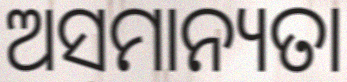
ଅସମାନ୍ୟତା